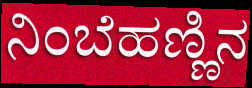
ನಿಂಬೆಹಣ್ಣಿನ